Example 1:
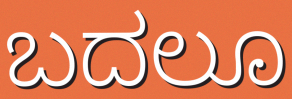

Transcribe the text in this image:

ಬದಲೂ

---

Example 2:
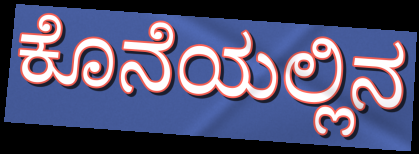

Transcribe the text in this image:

ಕೊನೆಯಲ್ಲಿನ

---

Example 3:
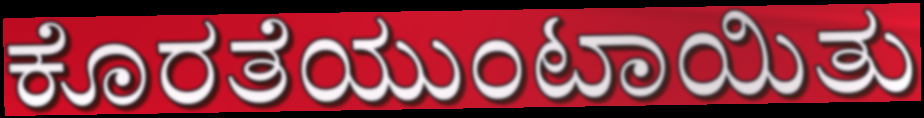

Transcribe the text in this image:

ಕೊರತೆಯುಂಟಾಯಿತು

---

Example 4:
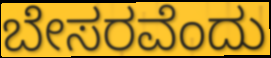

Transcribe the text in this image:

ಬೇಸರವೆಂದು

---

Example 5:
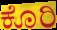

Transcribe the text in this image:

ಕೊರಿ